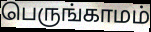
பெருங்காமம்